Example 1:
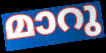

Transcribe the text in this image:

മാറു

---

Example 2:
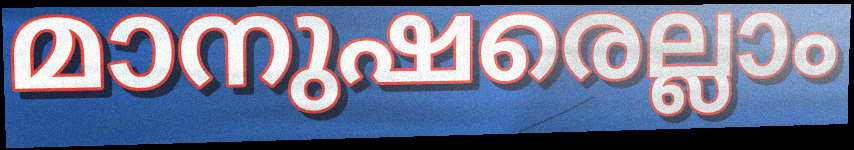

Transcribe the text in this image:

മാനുഷരെല്ലാം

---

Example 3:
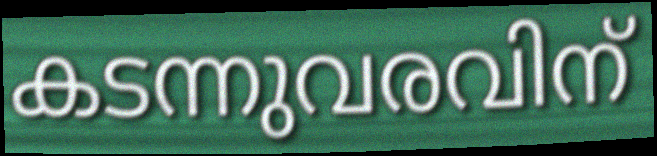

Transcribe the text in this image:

കടന്നുവരവിന്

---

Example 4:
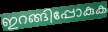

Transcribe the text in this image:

ഇറങ്ങിപ്പോകുക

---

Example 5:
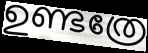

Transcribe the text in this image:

ഉണ്ടത്രേ